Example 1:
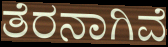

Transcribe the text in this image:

ತೆರನಾಗಿವೆ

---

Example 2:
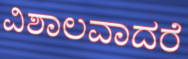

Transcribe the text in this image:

ವಿಶಾಲವಾದರೆ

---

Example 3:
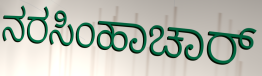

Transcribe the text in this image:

ನರಸಿಂಹಾಚಾರ್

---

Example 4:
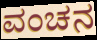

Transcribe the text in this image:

ವಂಚನ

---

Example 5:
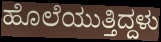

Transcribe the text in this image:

ಹೊಲೆಯುತ್ತಿದ್ದಳು